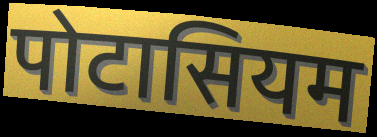
पोटासियम